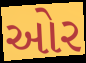
ઓર